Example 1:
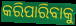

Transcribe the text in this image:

କରିପାରିବାକୁ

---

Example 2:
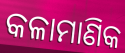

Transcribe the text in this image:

କଳାମାଣିକ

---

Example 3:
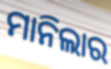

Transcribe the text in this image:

ମାନିଲାର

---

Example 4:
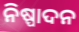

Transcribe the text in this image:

ନିଷ୍ପାଦନ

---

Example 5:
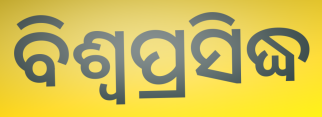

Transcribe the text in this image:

ବିଶ୍ଵପ୍ରସିଦ୍ଧ